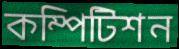
কম্পিটিশন